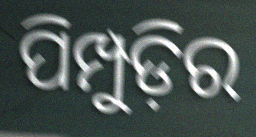
ପିମ୍ପୁଡ଼ିର